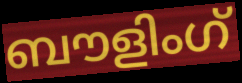
ബൗളിംഗ്